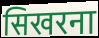
सिखरना